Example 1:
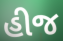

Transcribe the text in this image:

હીજ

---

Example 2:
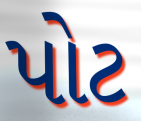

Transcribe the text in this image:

પોટ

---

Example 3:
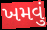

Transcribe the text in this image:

ખમવું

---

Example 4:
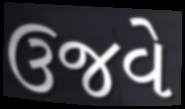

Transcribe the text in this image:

ઉજવે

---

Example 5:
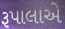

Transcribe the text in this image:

રૂપાલાએ